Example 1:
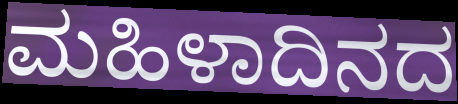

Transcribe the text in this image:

ಮಹಿಳಾದಿನದ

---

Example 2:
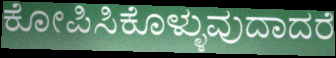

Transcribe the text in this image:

ಕೋಪಿಸಿಕೊಳ್ಳುವುದಾದರೆ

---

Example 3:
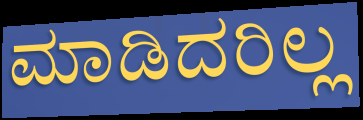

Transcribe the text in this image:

ಮಾಡಿದರಿಲ್ಲ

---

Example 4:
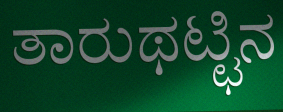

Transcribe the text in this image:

ತಾರುಥಟ್ಟಿನ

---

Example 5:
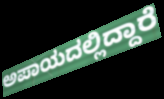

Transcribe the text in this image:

ಅಪಾಯದಲ್ಲಿದ್ದಾರೆ